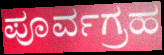
ಪೂರ್ವಗ್ರಹ